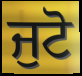
ਜੁਟੋ